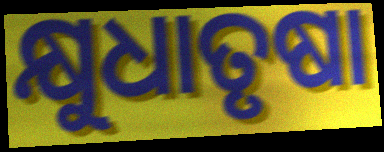
କ୍ଷୁଧାତୃଷା